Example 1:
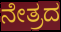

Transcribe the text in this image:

ನೇತ್ರದ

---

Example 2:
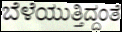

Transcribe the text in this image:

ಬೆಳೆಯುತ್ತಿದ್ದಂತೆ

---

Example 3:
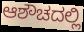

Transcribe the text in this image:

ಆಶೌಚದಲ್ಲಿ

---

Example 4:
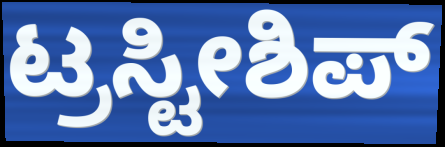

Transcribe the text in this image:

ಟ್ರಸ್ಟೀಶಿಪ್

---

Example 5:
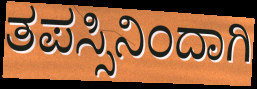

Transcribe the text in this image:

ತಪಸ್ಸಿನಿಂದಾಗಿ